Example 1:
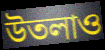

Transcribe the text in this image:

উতলাও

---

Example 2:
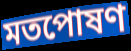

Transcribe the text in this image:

মতপোষণ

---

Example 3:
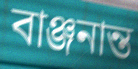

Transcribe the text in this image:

বাঞ্জনান্ত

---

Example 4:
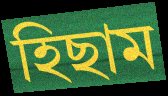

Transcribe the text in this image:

হিছাম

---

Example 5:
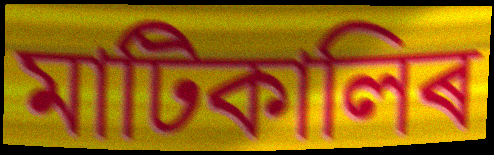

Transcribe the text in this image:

মাটিকালিৰ